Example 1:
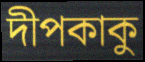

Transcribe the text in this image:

দীপকাকু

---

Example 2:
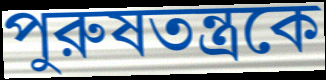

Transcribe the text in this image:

পুরুষতন্ত্রকে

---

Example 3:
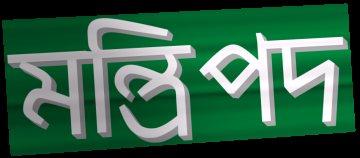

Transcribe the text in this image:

মন্ত্রিপদ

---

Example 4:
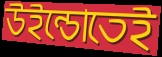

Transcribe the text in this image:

উইন্ডোতেই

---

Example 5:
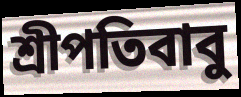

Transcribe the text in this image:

শ্রীপতিবাবু